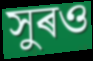
সুৰও